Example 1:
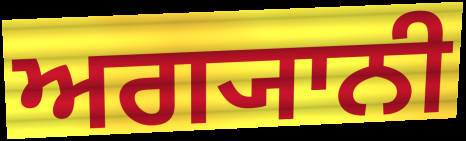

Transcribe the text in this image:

ਅਗ੍ਯਾਨੀ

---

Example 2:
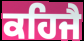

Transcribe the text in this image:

ਕਹਿਜੈ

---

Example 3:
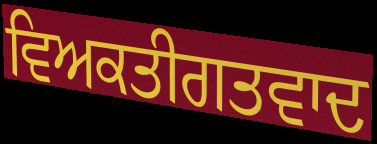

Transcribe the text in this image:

ਵਿਅਕਤੀਗਤਵਾਦ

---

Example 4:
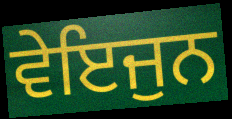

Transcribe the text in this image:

ਵੇਇਜੁਨ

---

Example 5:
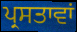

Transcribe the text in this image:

ਪ੍ਰਸਤਾਵਾਂ